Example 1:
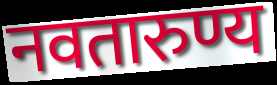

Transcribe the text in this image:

नवतारुण्य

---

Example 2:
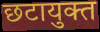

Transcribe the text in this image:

छटायुक्त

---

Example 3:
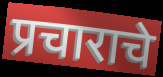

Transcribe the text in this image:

प्रचाराचे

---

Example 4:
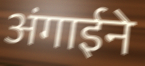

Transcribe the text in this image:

अंगाईने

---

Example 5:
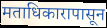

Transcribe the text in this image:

मताधिकारापासून